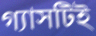
গ্যাসটিই